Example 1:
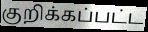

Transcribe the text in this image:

குறிக்கப்பட்ட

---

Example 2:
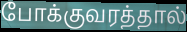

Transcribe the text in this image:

போக்குவரத்தால்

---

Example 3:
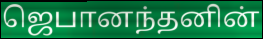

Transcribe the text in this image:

ஜெபானந்தனின்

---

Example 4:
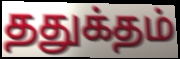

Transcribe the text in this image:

ததுக்தம்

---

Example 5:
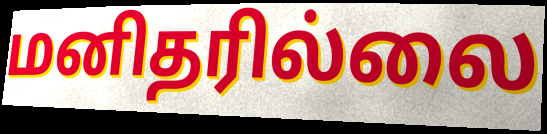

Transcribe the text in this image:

மனிதரில்லை